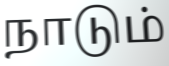
நாடும்